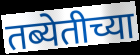
तब्येतीच्या